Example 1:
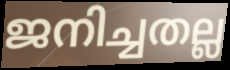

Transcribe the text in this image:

ജനിച്ചതല്ല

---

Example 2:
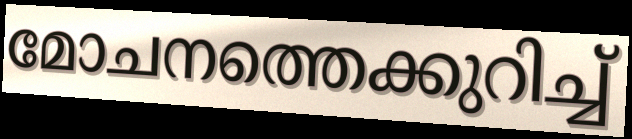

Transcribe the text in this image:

മോചനത്തെക്കുറിച്ച്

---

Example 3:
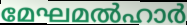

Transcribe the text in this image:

മേഘമൽഹാർ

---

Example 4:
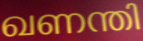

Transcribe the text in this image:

ഖണന്തി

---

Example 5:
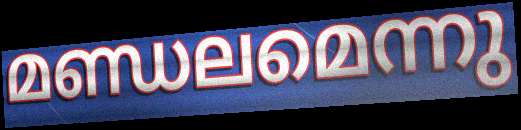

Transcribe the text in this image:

മണ്ഡലമെന്നു